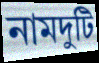
নামদুটি